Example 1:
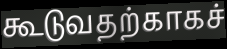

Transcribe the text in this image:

கூடுவதற்காகச்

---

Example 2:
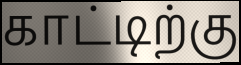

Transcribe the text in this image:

காட்டிற்கு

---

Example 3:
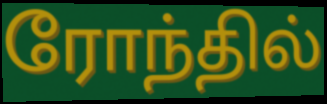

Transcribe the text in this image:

ரோந்தில்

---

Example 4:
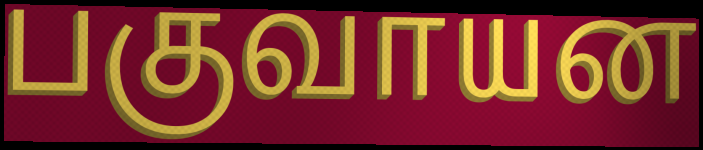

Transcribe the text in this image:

பகுவாயன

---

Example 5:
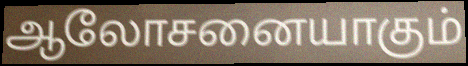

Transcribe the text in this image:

ஆலோசனையாகும்